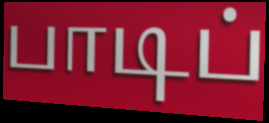
பாடிப்